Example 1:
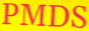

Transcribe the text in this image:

PMDS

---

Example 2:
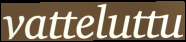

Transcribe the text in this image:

vatteluttu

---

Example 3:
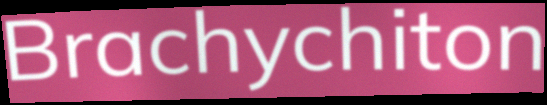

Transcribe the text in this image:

Brachychiton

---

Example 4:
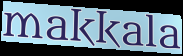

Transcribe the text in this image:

makkala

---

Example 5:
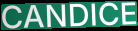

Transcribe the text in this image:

CANDICE